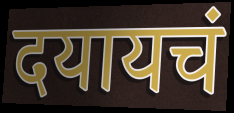
दयायचं